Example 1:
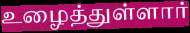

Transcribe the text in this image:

உழைத்துள்ளார்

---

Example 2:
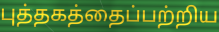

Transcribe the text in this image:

புத்தகத்தைப்பற்றிய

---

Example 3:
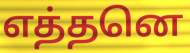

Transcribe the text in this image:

எத்தனெ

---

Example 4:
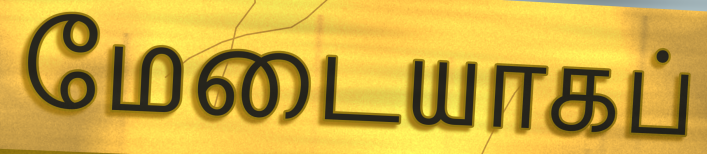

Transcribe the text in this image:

மேடையாகப்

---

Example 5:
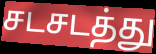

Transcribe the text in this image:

சடசடத்து